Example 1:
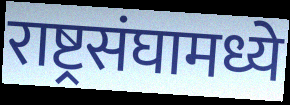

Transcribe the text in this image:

राष्ट्रसंघामध्ये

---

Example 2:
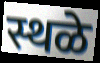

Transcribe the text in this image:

स्थळे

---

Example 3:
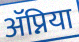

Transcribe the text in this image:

ॲप्निया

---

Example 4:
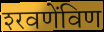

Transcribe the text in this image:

श्रवणेंविण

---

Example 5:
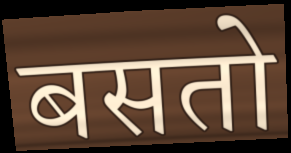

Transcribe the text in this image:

बसतो